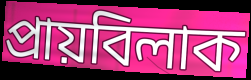
প্ৰায়বিলাক